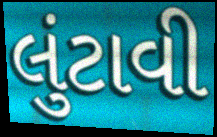
લુંટાવી